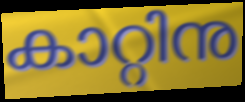
കാറ്റിനു